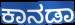
ಕಾನಡಾ